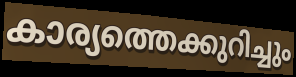
കാര്യത്തെക്കുറിച്ചും